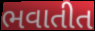
ભવાતીત